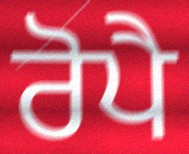
ਰੋਪੈ